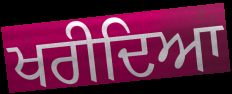
ਖਰੀਦਿਆ